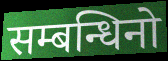
सम्बन्धिनो